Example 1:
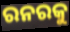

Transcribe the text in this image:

ରନରକୁ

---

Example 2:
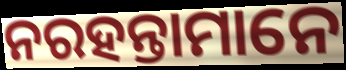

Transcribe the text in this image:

ନରହନ୍ତାମାନେ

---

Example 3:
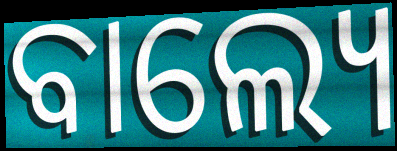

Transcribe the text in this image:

ବାଲ୍ୟେ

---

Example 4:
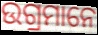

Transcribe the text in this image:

ଉଗ୍ରମାନେ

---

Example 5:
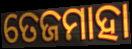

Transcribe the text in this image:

ତେଜମାହା